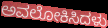
ಅವಲೋಕಿಸಿದಳು